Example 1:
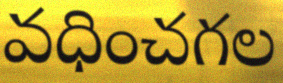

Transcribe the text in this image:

వధించగల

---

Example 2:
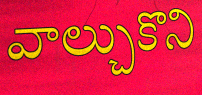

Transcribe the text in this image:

వాల్చుకొని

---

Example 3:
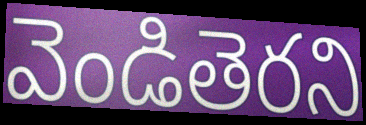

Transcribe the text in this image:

వెండితెరని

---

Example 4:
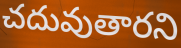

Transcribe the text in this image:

చదువుతారని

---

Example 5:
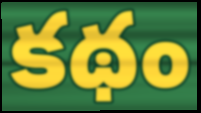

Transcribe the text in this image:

కథం